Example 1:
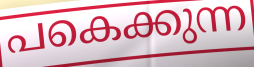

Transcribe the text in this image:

പകെക്കുന്ന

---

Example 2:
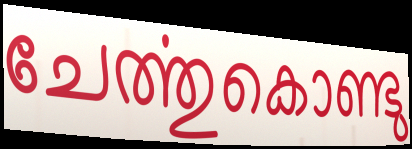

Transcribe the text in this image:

ചേൎത്തുകൊണ്ടു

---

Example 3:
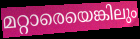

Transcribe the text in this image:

മറ്റാരെയെങ്കിലും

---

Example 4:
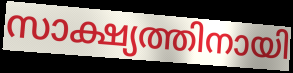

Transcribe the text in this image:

സാക്ഷ്യത്തിനായി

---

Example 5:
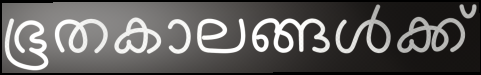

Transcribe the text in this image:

ഭൂതകാലങ്ങൾക്ക്